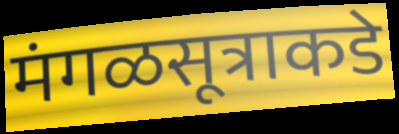
मंगळसूत्राकडे